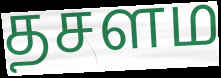
தசளம